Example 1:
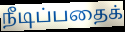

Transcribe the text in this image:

நீடிப்பதைக்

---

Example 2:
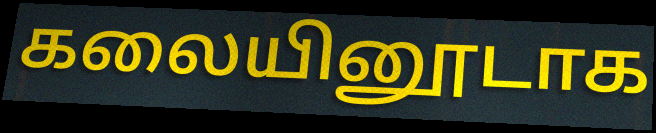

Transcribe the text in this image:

கலையினூடாக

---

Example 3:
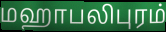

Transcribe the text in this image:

மஹாபலிபுரம்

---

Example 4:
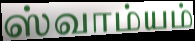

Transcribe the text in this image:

ஸ்வாம்யம்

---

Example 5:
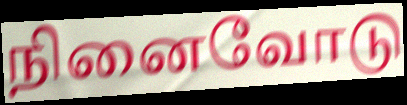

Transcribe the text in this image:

நினைவோடு